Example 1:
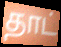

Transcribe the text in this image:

தாட்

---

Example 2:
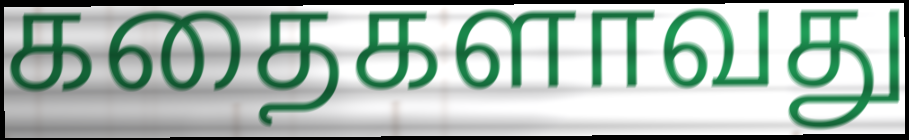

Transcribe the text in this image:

கதைகளாவது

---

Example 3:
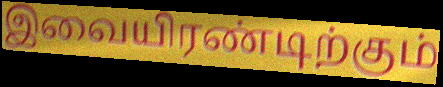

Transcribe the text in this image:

இவையிரண்டிற்கும்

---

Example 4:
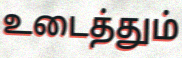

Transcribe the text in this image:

உடைத்தும்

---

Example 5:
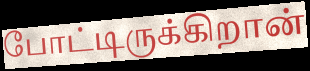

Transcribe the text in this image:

போட்டிருக்கிறான்